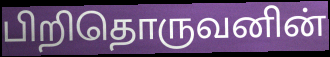
பிறிதொருவனின்